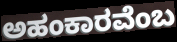
ಅಹಂಕಾರವೆಂಬ